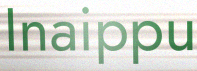
Inaippu